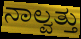
ನಾಲ್ವತ್ತು